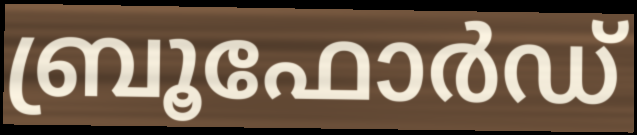
ബ്രൂഫോർഡ്